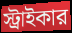
স্ট্রাইকার